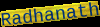
Radhanath